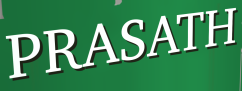
PRASATH